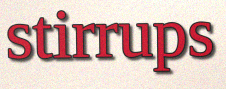
stirrups